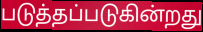
படுத்தப்படுகின்றது